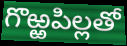
గొఱ్ఱపిల్లతో